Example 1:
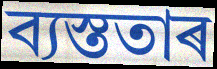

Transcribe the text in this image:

ব্যস্ততাৰ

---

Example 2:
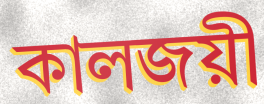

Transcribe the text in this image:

কালজয়ী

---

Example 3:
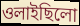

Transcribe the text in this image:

ওলাইছিলো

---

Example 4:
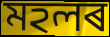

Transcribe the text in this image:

মহলৰ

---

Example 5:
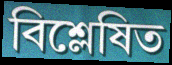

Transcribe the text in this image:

বিশ্লেষিত